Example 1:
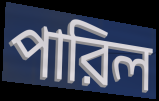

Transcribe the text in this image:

পারিল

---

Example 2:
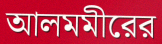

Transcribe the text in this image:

আলমমীরের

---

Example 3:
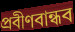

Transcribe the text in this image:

প্রবীণবান্ধব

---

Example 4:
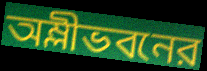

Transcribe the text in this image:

অম্লীভবনের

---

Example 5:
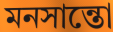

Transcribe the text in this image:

মনসান্তো